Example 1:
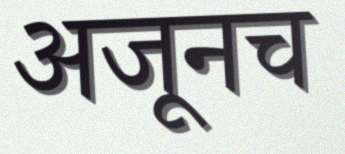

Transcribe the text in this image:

अजूनच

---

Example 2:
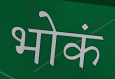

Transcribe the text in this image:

भोकं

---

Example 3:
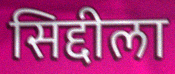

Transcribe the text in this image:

सिद्दीला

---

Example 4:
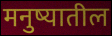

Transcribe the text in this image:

मनुष्यातील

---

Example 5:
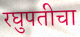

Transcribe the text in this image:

रघुपतीचा